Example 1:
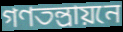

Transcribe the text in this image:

গণতন্ত্রায়নে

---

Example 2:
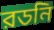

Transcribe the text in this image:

রডনি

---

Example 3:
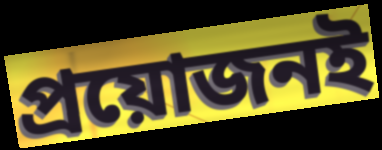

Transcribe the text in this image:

প্রয়োজনই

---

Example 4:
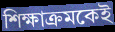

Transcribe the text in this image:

শিক্ষাক্রমকেই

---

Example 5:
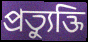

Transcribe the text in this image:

প্রত্যুক্তি